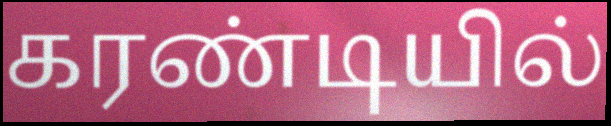
கரண்டியில்